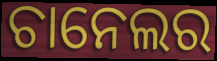
ଚାନେଲର